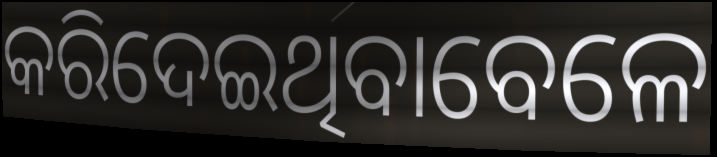
କରିଦେଇଥିବାବେଳେ